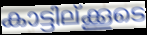
കാട്ടില്ക്കൂടെ